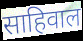
साहिवाल